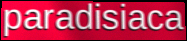
paradisiaca